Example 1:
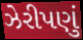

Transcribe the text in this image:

ઝેરીપણું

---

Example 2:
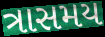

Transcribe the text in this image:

ત્રાસમય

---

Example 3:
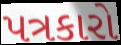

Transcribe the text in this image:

પત્રકારો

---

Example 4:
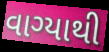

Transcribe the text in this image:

વાગ્યાથી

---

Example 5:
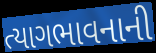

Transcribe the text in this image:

ત્યાગભાવનાની